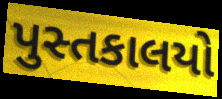
પુસ્તકાલયો